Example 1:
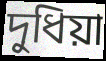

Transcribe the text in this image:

দুধিয়া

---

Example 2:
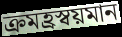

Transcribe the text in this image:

ক্রমহ্রস্বয়মান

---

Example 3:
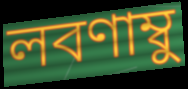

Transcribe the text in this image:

লবণাম্বু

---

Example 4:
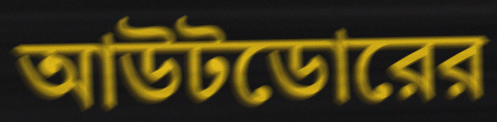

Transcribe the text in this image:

আউটডোরের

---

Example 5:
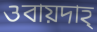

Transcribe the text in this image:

ওবায়দাহ্